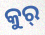
କୁର୍